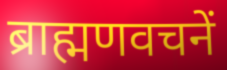
ब्राह्मणवचनें